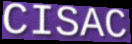
CISAC